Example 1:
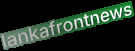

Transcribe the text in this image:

lankafrontnews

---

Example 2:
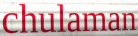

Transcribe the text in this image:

chulaman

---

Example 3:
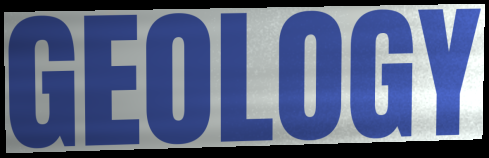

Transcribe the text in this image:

GEOLOGY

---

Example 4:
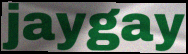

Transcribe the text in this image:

jaygay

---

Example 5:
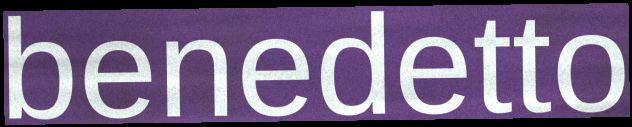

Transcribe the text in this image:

benedetto